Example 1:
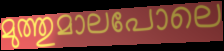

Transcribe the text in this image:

മുത്തുമാലപോലെ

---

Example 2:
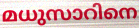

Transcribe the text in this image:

മധുസാറിനെ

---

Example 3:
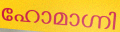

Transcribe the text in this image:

ഹോമാഗ്നി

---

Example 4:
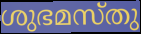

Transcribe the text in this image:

ശുഭമസ്തു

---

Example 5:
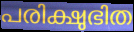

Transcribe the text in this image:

പരിക്ഷുഭിത